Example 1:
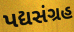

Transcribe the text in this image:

પદ્યસંગ્રહ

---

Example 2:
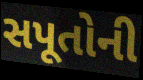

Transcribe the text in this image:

સપૂતોની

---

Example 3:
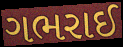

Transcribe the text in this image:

ગભરાઈ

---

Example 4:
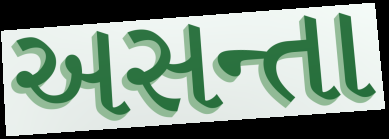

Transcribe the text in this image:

અસન્તા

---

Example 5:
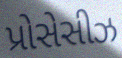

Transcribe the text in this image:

પ્રોસેસીઝ